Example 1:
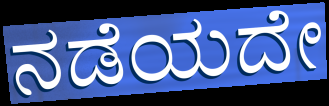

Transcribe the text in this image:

ನಡೆಯದೇ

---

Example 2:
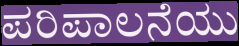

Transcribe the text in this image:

ಪರಿಪಾಲನೆಯು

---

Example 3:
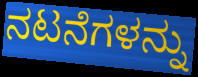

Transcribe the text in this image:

ನಟನೆಗಳನ್ನು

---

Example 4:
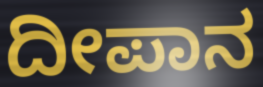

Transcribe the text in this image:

ದೀಪಾನ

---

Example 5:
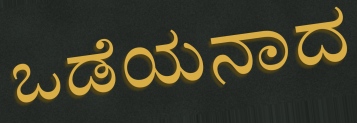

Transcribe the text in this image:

ಒಡೆಯನಾದ